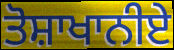
ਤੋਸ਼ਾਖਾਨੀਏ